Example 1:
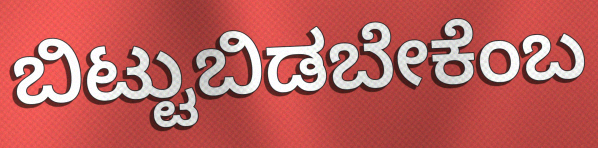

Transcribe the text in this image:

ಬಿಟ್ಟುಬಿಡಬೇಕೆಂಬ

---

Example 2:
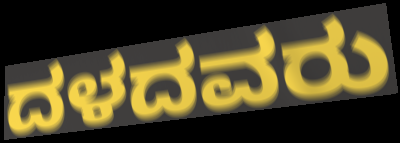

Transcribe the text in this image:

ದಳದವರು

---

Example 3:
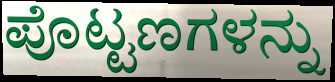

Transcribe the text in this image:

ಪೊಟ್ಟಣಗಳನ್ನು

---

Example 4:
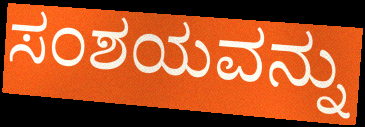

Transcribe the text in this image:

ಸಂಶಯವನ್ನು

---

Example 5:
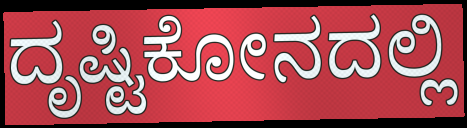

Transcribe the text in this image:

ದೃಷ್ಟಿಕೋನದಲ್ಲಿ